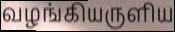
வழங்கியருளிய